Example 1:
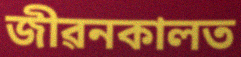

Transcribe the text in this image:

জীৱনকালত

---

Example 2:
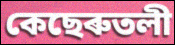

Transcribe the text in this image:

কেছেৰুতলী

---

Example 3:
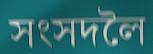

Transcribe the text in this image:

সংসদলৈ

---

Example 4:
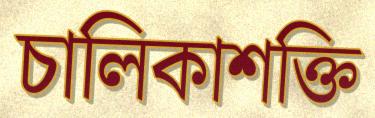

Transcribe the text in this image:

চালিকাশক্তি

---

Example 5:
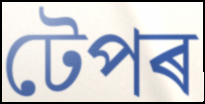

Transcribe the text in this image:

টেপৰ